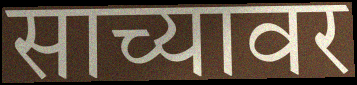
साच्यावर